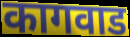
कागवाड